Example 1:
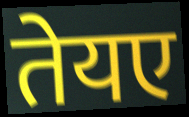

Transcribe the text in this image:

तेयए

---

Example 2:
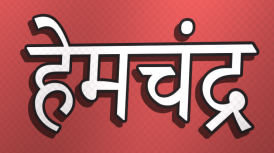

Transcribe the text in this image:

हेमचंद्र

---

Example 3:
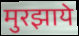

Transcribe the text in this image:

मुरझाये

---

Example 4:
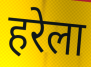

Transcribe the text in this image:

हरेला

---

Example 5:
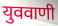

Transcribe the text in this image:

युववाणी